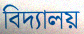
বিদ্যালয়